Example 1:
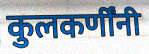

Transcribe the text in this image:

कुलकर्णींनी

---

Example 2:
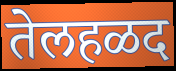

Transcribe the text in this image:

तेलहळद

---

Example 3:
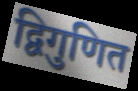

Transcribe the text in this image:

द्विगुणित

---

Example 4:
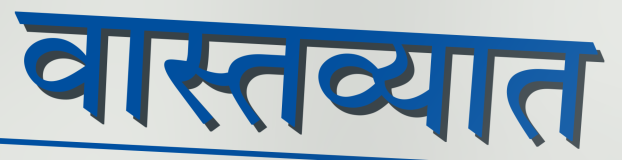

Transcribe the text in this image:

वास्तव्यात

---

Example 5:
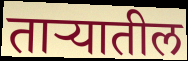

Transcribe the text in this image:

ताऱ्यातील